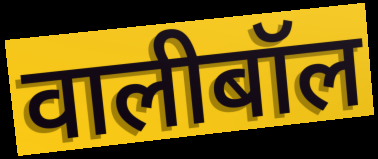
वालीबॉल